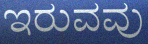
ಇರುವವು